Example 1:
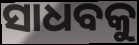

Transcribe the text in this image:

ସାଧବକୁ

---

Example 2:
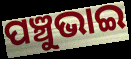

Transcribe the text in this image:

ପଞ୍ଚୁଭାଇ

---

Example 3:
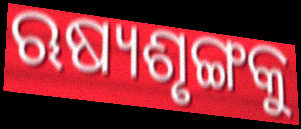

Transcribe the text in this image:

ଋଷ୍ୟଶୃଙ୍ଗକୁ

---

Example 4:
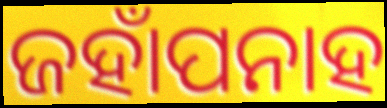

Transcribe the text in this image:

ଜହାଁପନାହ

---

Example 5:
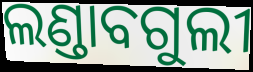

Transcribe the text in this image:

ଲଣ୍ଡାବଗୁଲୀ